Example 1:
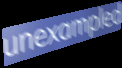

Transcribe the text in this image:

unexampled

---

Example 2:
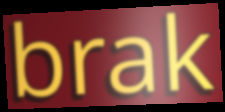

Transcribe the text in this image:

brak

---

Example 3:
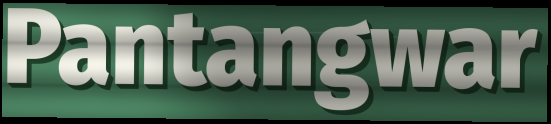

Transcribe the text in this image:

Pantangwar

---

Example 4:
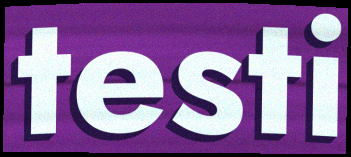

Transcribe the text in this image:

testi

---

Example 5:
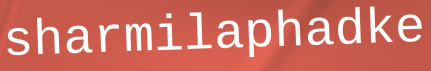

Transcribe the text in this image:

sharmilaphadke